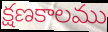
క్షణకాలము